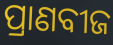
ପ୍ରାଣବୀଜ